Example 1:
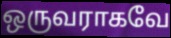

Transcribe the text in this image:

ஒருவராகவே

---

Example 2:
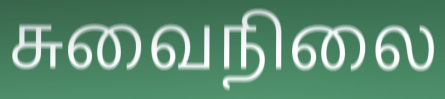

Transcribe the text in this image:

சுவைநிலை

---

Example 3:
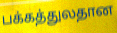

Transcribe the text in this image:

பக்கத்துலதான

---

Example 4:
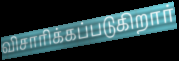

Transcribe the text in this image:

விசாரிக்கப்படுகிறார்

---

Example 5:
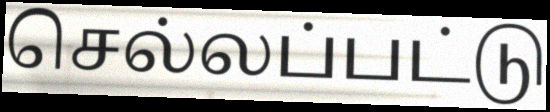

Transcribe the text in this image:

செல்லப்பட்டு